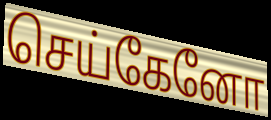
செய்கேனோ